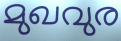
മുഖവുര